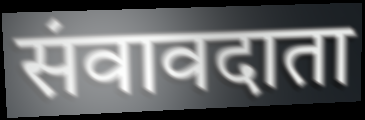
संवावदाता